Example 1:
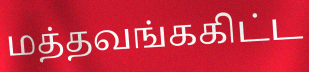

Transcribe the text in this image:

மத்தவங்ககிட்ட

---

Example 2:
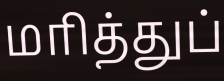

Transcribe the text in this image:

மரித்துப்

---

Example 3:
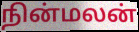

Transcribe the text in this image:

நின்மலன்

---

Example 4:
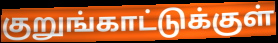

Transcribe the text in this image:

குறுங்காட்டுக்குள்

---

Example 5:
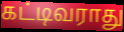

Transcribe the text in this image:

கட்டிவராது